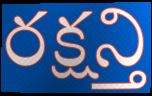
రక్షన్తి